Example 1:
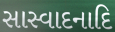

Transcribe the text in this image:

સાસ્વાદનાદિ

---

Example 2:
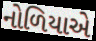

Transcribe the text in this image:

નોળિયાએ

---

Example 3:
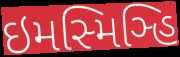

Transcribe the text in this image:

ઇમસ્મિઞ્હિ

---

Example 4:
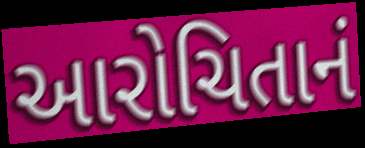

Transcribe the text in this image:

આરોચિતાનં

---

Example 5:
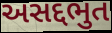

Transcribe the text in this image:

અસદ્દભુત